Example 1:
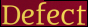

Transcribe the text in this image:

Defect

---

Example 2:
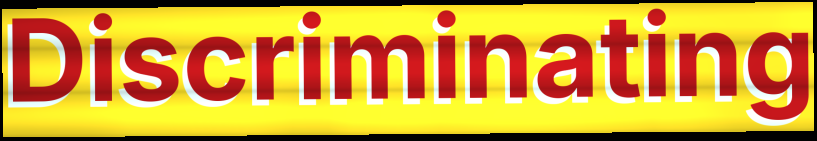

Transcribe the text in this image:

Discriminating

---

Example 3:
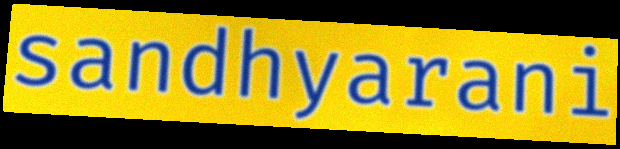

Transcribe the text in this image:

sandhyarani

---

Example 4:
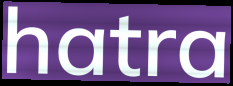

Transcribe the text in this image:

hatra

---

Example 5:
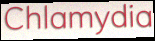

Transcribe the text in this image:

Chlamydia